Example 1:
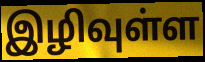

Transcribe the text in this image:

இழிவுள்ள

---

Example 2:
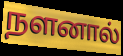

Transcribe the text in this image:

நளனால்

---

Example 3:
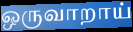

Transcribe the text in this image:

ஒருவாறாய்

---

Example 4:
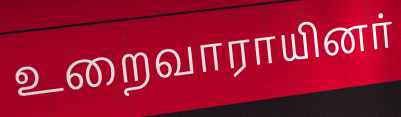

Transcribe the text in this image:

உறைவாராயினர்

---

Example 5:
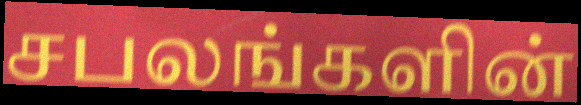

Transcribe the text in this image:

சபலங்களின்